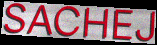
SACHEJ